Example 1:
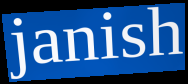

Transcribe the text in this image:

janish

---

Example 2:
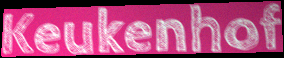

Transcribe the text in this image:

Keukenhof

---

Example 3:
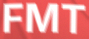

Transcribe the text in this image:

FMT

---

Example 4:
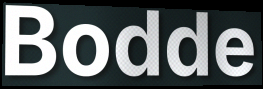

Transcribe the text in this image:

Bodde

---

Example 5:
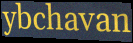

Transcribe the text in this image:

ybchavan